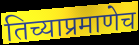
तिच्याप्रमाणेच